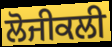
ਲੋਜੀਕਲੀ